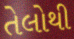
તેલોથી